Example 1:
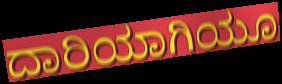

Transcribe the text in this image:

ದಾರಿಯಾಗಿಯೂ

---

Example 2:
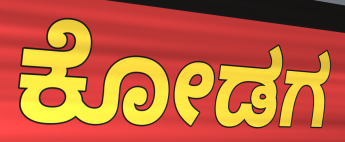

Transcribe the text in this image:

ಕೋಡಗ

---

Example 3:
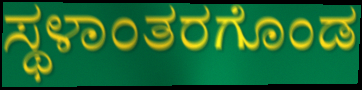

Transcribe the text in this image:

ಸ್ಥಳಾಂತರಗೊಂಡ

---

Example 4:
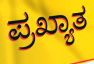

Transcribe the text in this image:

ಪ್ರಖ್ಯಾತ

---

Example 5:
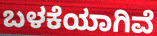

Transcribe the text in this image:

ಬಳಕೆಯಾಗಿವೆ